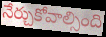
నేర్చుకోవాల్సింది